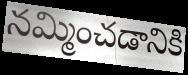
నమ్మించడానికి